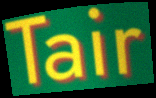
Tair